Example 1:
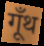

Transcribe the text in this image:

गूँथ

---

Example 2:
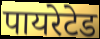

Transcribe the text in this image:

पायरेटेड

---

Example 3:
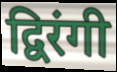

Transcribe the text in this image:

द्विरंगी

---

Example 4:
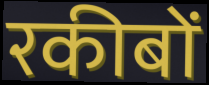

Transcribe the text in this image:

रकीबों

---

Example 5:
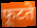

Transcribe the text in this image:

फूटते